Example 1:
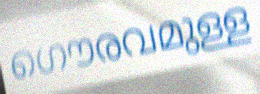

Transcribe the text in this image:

ഗൌരവമുള്ള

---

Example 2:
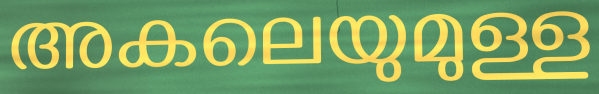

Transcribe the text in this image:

അകലെയുമുള്ള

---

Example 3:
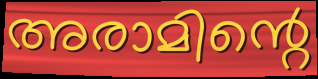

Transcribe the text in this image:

അരാമിന്റെ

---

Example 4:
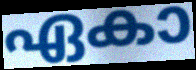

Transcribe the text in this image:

ഏകാ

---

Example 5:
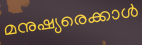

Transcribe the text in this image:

മനുഷ്യരെക്കാൾ